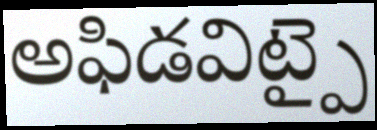
అఫిడవిట్పై